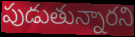
పుడుతున్నారని